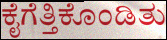
ಕೈಗೆತ್ತಿಕೊಂಡಿತು